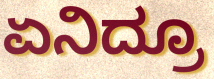
ಏನಿದ್ರೂ